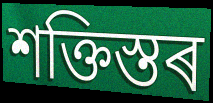
শক্তিস্তৰ